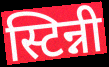
स्टिन्नी